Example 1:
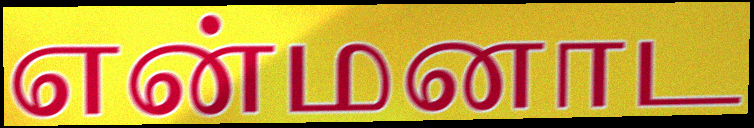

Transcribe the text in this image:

என்மனாட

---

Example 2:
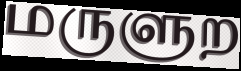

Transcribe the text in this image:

மருளுற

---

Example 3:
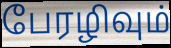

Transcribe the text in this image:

பேரழிவும்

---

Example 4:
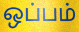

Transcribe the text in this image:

ஒப்பம்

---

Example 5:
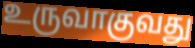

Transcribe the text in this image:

உருவாகுவது